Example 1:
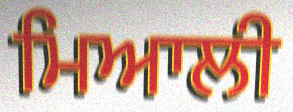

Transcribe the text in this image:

ਮਿਆਲੀ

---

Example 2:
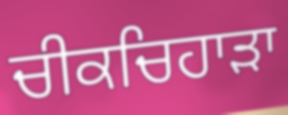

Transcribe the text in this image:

ਚੀਕਚਿਹਾੜਾ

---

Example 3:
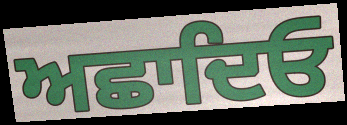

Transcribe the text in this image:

ਅਛਾਦਿਓ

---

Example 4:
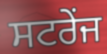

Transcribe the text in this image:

ਸਟਰੇਂਜ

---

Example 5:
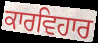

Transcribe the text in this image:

ਕਾਰਵਿਹਾਰ